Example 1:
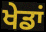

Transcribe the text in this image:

ਖੇਡਾਂ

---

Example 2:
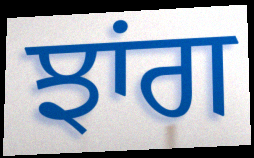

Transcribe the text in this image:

ਝਾਂਗ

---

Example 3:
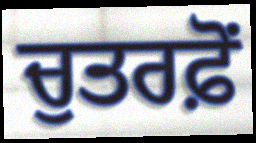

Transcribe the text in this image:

ਚੁਤਰਫ਼ੋਂ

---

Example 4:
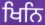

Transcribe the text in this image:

ਖਿਨਿ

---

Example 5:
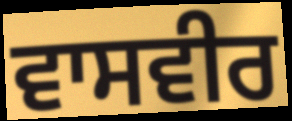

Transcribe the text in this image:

ਵਾਸਵੀਰ